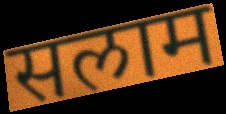
सलाम